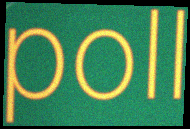
poll